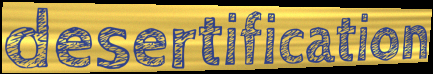
desertification